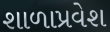
શાળાપ્રવેશ